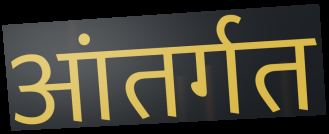
आंतर्गत